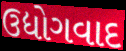
ઉદ્યોગવાદ